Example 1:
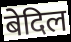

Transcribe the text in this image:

बेदिल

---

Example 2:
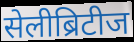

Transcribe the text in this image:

सेलीब्रिटीज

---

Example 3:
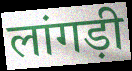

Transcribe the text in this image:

लांगड़ी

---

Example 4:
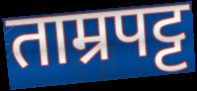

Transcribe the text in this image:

ताम्रपट्ट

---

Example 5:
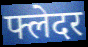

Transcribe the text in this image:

फ्लेदर